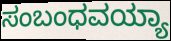
ಸಂಬಂಧವಯ್ಯಾ